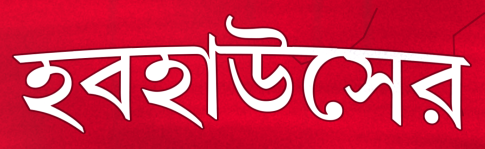
হবহাউসের